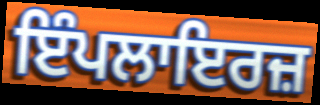
ਇੰਪਲਾਇਰਜ਼